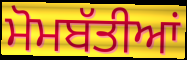
ਮੋਮਬੱਤੀਆਂ